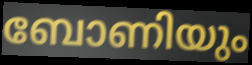
ബോണിയും